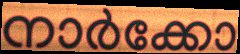
നാർക്കോ